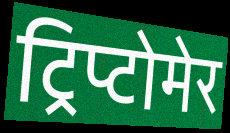
ट्रिप्टोमेर